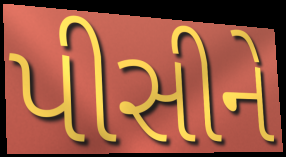
પીસીને